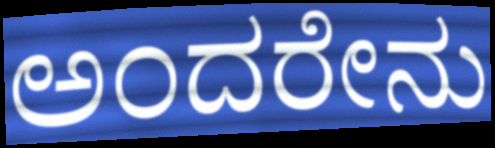
ಅಂದರೇನು